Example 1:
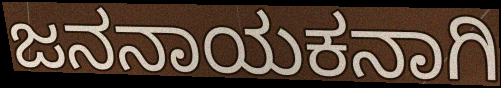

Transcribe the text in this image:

ಜನನಾಯಕನಾಗಿ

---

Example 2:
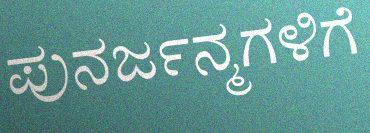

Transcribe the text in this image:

ಪುನರ್ಜನ್ಮಗಳಿಗೆ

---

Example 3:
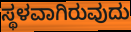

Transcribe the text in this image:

ಸ್ಥಳವಾಗಿರುವುದು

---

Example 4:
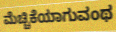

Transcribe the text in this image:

ಮೆಚ್ಚಿಕೆಯಾಗುವಂಥ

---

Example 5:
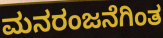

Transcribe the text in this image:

ಮನರಂಜನೆಗಿಂತ